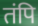
तंपि